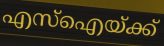
എസ്ഐയ്ക്ക്